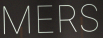
MERS